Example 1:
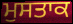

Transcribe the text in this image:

ਮੁਸਤਾਕ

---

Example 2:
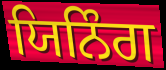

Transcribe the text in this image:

ਯਿਨਿੰਗ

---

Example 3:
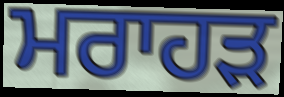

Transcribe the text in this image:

ਮਰਾਹੜ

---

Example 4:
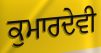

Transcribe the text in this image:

ਕੁਮਾਰਦੇਵੀ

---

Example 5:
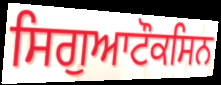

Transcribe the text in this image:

ਸਿਗੁਆਟੌਕਸਿਨ